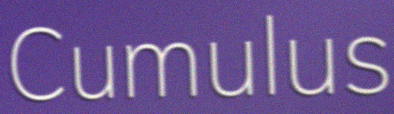
Cumulus